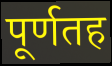
पूर्णतह